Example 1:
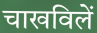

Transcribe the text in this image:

चाखविलें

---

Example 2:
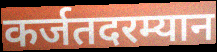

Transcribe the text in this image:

कर्जतदरम्यान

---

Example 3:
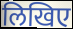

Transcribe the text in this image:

लिखिए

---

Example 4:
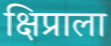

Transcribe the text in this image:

क्षिप्राला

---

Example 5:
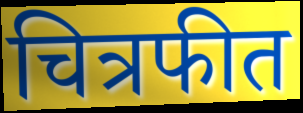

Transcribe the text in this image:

चित्रफीत